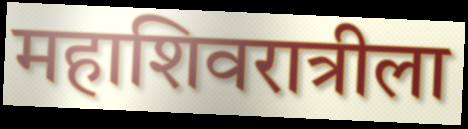
महाशिवरात्रीला